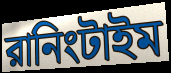
রানিংটাইম